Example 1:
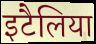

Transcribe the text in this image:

इटैलिया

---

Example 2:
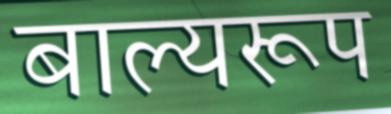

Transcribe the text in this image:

बाल्यरूप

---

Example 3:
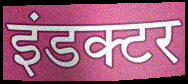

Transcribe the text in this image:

इंडक्टर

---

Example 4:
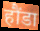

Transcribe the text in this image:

हौंडा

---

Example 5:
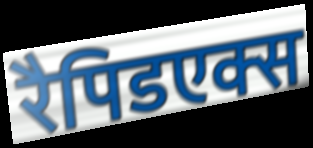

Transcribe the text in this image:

रैपिडएक्स